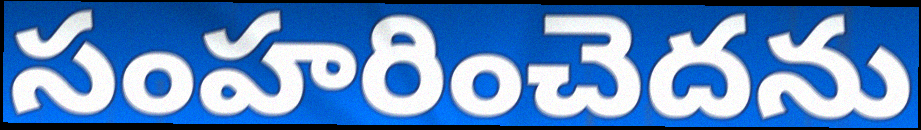
సంహరించెదను